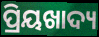
ପ୍ରିୟଖାଦ୍ୟ